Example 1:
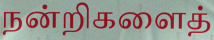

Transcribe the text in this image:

நன்றிகளைத்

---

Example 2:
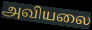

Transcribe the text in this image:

அவியலை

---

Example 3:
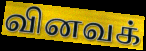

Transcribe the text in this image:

வினவக்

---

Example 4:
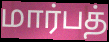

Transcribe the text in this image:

மார்பத்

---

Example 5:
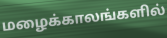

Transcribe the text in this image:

மழைக்காலங்களில்